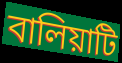
বালিয়াটি